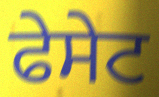
ਫੇਸੇਟ